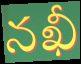
నఖీ